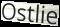
Ostlie